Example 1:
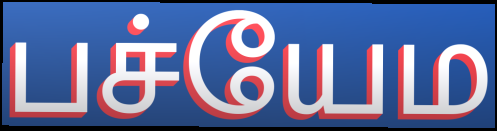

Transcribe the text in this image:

பச்யேம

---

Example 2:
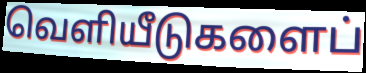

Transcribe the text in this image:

வெளியீடுகளைப்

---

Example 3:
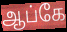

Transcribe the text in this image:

ஆப்கே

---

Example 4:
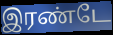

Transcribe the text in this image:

இரண்டே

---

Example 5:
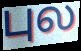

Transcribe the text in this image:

புல